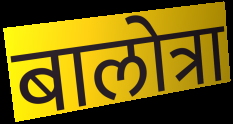
बालोत्रा